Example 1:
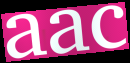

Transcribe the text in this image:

aac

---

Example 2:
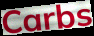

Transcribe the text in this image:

Carbs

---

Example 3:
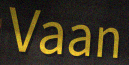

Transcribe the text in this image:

Vaan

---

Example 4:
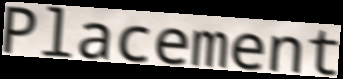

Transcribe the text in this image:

Placement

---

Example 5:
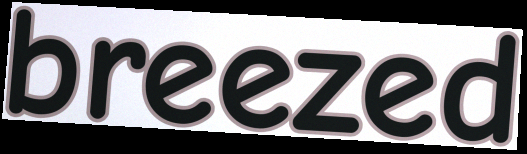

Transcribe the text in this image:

breezed